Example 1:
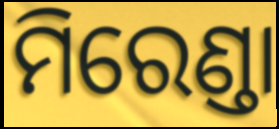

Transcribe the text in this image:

ମିରେଣ୍ଡା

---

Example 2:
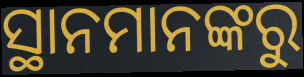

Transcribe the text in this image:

ସ୍ଥାନମାନଙ୍କରୁ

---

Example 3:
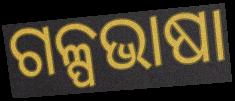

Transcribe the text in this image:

ଗଳ୍ପଭାଷା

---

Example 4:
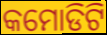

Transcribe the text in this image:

କମୋଡିଟି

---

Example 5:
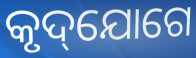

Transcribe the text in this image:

କୃଦ୍‌ଯୋଗେ